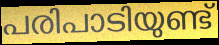
പരിപാടിയുണ്ട്